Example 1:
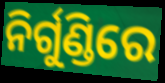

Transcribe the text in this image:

ନିର୍ଗୁଣ୍ଡିରେ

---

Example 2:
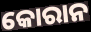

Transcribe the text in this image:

କୋରାନ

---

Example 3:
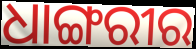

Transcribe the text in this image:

ଧାଙ୍ଗରୀର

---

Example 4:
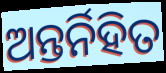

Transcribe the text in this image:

ଅନ୍ତର୍ନିହିତ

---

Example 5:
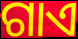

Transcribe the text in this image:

ଗାଏ